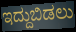
ಇದ್ದುಬಿಡಲು